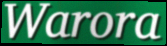
Warora